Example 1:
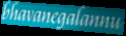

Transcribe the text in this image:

bhavanegalannu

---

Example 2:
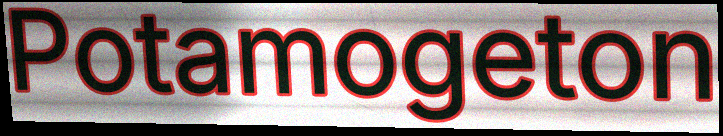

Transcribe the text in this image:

Potamogeton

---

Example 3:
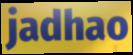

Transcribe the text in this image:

jadhao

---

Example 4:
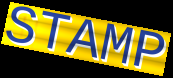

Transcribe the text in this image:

STAMP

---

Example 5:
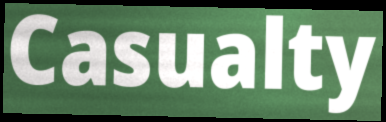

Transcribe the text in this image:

Casualty